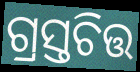
ଗ୍ରସ୍ତଚିତ୍ତ